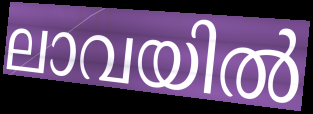
ലാവയിൽ